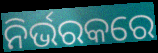
ନିର୍ଭରକରେ